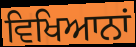
ਵਿਖਿਆਨਾਂ